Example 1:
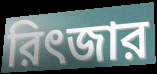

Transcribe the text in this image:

রিৎজার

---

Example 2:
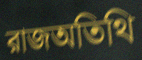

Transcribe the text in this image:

রাজঅতিথি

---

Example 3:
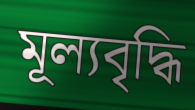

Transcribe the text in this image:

মূল্যবৃদ্ধি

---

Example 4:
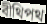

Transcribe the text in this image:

বীথিপথ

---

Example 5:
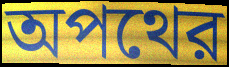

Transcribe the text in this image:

অপথের